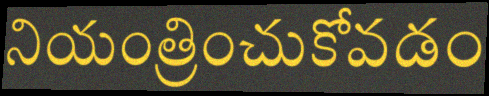
నియంత్రించుకోవడం